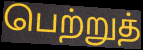
பெற்றுத்